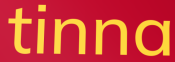
tinna